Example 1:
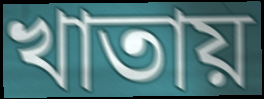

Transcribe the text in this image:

খাতায়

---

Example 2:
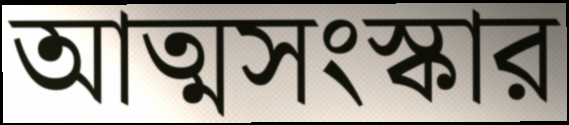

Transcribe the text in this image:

আত্মসংস্কার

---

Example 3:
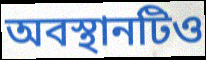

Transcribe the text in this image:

অবস্থানটিও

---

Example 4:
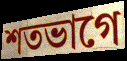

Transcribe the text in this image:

শতভাগে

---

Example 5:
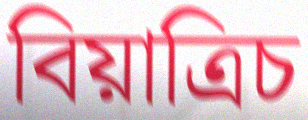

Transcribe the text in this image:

বিয়াত্রিচ